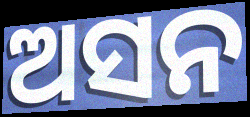
ଅସନ